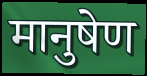
मानुषेण